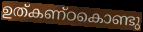
ഉത്കണ്ഠകൊണ്ടു